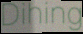
Dihing